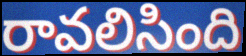
రావలిసింది